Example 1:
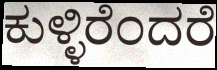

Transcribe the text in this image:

ಕುಳ್ಳಿರೆಂದರೆ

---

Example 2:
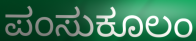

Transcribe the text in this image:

ಪಂಸುಕೂಲಂ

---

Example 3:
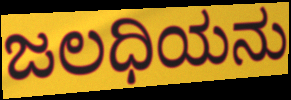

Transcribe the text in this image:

ಜಲಧಿಯನು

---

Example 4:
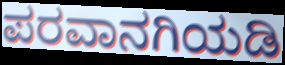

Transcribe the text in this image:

ಪರವಾನಗಿಯಡಿ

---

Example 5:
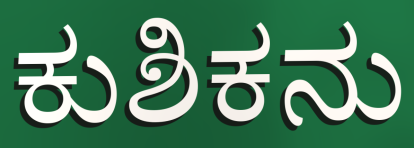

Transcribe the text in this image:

ಕುಶಿಕನು